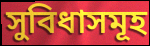
সুবিধাসমূহ